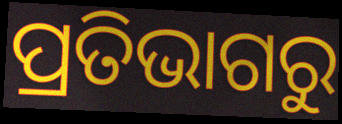
ପ୍ରତିଭାଗରୁ